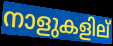
നാളുകളില്